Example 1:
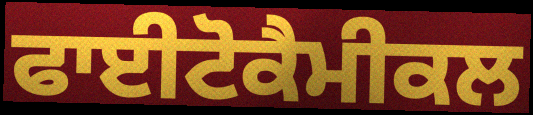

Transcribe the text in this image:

ਫਾਈਟੋਕੈਮੀਕਲ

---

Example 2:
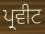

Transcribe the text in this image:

ਪ੍ਰਵੀਟ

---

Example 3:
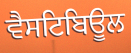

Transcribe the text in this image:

ਵੈਸਟਿਬਿਊਲ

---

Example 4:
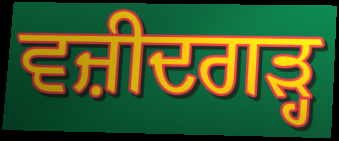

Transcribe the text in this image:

ਵਜ਼ੀਦਗੜ੍ਹ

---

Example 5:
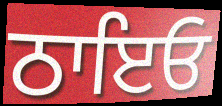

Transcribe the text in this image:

ਠਾਇਓ